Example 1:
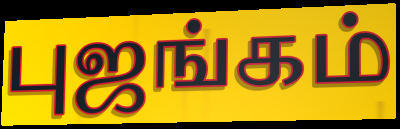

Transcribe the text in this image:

புஜங்கம்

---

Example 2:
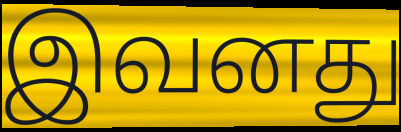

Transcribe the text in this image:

இவனது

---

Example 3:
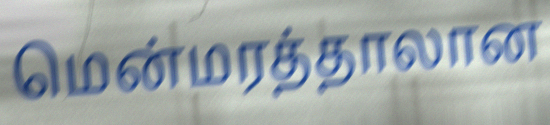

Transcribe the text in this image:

மென்மரத்தாலான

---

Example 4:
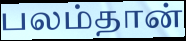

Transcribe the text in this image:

பலம்தான்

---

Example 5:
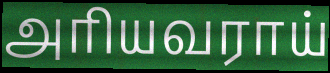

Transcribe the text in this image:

அரியவராய்